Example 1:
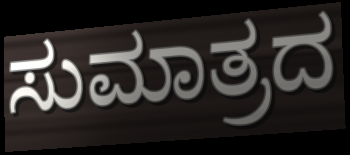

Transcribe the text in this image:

ಸುಮಾತ್ರದ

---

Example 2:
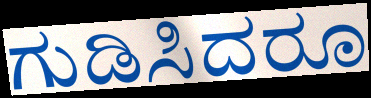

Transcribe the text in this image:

ಗುಡಿಸಿದರೂ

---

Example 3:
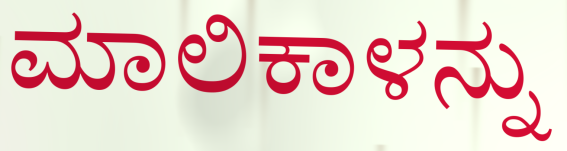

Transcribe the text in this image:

ಮಾಲಿಕಾಳನ್ನು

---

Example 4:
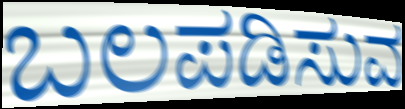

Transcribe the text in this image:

ಬಲಪಡಿಸುವ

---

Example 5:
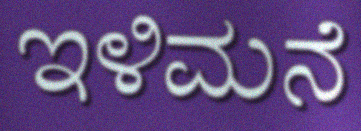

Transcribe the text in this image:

ಇಳಿಮನೆ